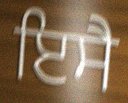
ਇਸੈ